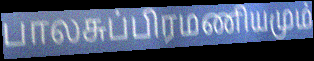
பாலசுப்பிரமணியமும்